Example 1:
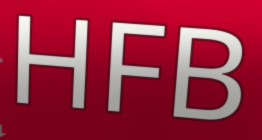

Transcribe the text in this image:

HFB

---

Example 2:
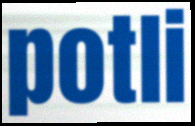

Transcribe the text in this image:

potli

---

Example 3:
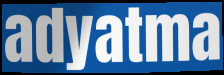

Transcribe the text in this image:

adyatma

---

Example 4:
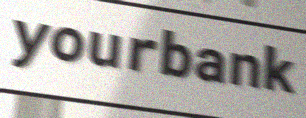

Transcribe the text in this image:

yourbank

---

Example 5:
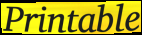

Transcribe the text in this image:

Printable